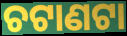
ଚଟାଣଟା